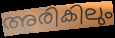
അരികിലും